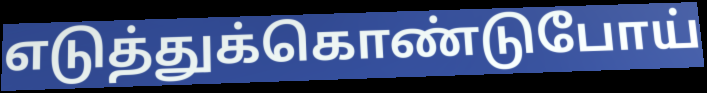
எடுத்துக்கொண்டுபோய்